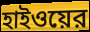
হাইওয়ের